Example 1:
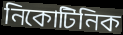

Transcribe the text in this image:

নিকোটিনিক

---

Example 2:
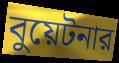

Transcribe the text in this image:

বুয়েটনার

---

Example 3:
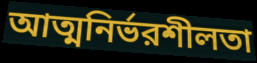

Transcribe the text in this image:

আত্মনির্ভরশীলতা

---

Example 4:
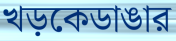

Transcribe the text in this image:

খড়কেডাঙার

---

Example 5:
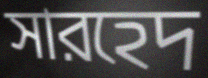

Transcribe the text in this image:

সারহেদ